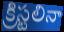
క్రిస్టలినా